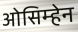
ओसिम्हेन